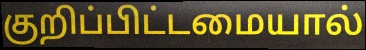
குறிப்பிட்டமையால்